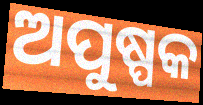
ଅପୁଷ୍ପକ